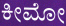
ಕೀಮೋ